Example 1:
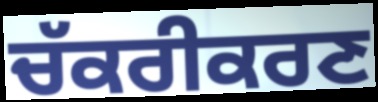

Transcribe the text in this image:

ਚੱਕਰੀਕਰਣ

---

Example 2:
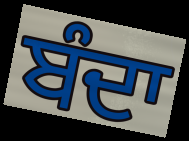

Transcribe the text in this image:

ਬੰਦਾ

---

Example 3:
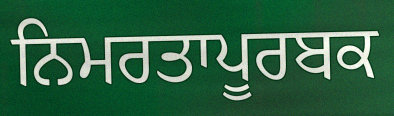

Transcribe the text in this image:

ਨਿਮਰਤਾਪੂਰਬਕ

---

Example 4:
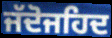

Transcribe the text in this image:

ਜੱਦੋਜਹਿਦ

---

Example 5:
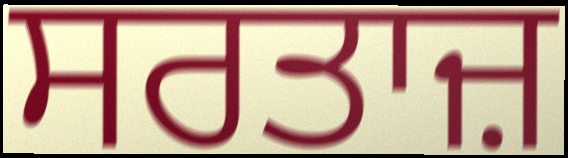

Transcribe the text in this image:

ਸਰਤਾਜ਼